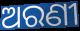
ଅରଣୀ